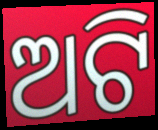
ଅଟି